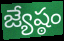
జ్యేష్ఠం